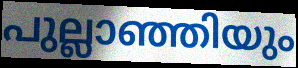
പുല്ലാഞ്ഞിയും